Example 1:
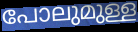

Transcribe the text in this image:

പോലുമുള്ള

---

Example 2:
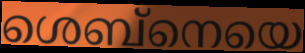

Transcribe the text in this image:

ശെബ്നെയെ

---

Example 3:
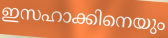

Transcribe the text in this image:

ഇസഹാക്കിനെയും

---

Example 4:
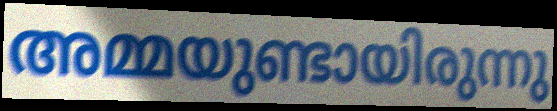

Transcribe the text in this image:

അമ്മയുണ്ടായിരുന്നു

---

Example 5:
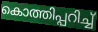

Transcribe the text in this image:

കൊത്തിപ്പറിച്ച്